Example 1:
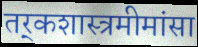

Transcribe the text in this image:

तर्कशास्त्रमीमांसा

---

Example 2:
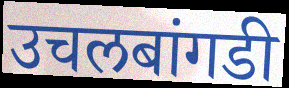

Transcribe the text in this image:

उचलबांगडी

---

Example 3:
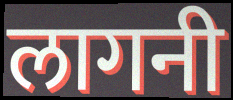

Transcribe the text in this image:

लागनी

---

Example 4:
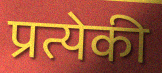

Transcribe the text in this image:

प्रत्येकी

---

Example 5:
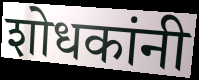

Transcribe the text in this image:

शोधकांनी